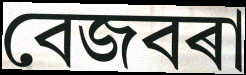
বেজবৰা